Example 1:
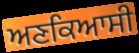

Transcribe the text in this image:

ਅਣਕਿਆਸੀ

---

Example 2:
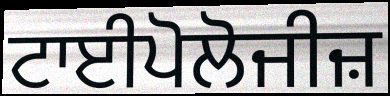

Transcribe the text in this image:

ਟਾਈਪੋਲੋਜੀਜ਼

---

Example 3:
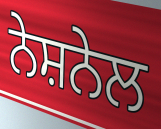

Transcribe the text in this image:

ਨੇਸ਼ਨੇਲ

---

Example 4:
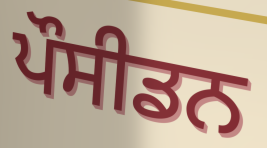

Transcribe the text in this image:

ਪੌਸੀਡਨ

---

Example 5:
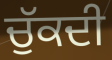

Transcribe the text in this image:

ਚੁੱਕਦੀ